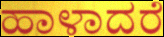
ಹಾಳಾದರೆ